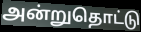
அன்றுதொட்டு